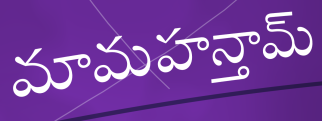
మామహన్తామ్